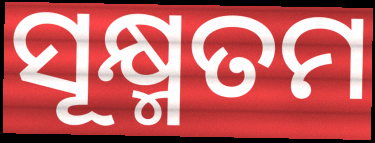
ସୂକ୍ଷ୍ମତମ